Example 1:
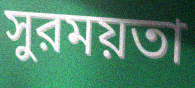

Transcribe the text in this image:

সুরময়তা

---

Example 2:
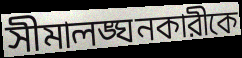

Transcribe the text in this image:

সীমালঙ্ঘনকারীকে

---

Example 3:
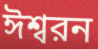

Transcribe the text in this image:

ঈশ্বরন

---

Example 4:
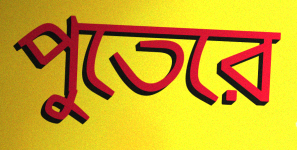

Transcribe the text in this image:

পুতেরে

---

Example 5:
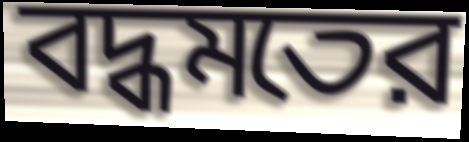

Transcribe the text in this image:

বদ্ধমতের